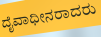
ದೈವಾಧೀನರಾದರು